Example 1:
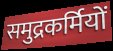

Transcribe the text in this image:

समुद्रकर्मियों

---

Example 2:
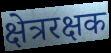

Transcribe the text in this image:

क्षेत्ररक्षक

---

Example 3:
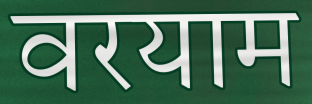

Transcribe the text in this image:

वरयाम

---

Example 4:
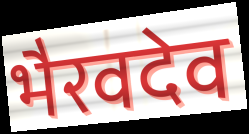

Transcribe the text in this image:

भैरवदेव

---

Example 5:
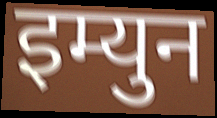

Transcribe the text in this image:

इम्‍युन